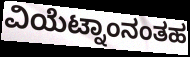
ವಿಯೆಟ್ನಾಂನಂತಹ